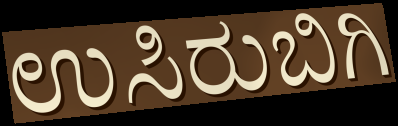
ಉಸಿರುಬಿಗಿ